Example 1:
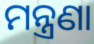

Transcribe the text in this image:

ମନ୍ତ୍ରଣା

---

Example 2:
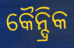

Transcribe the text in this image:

କୈନ୍ଦ୍ରିକ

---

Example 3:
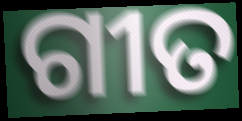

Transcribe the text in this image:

ଗୀତ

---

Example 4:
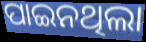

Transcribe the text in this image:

ପାଇନଥିଲା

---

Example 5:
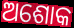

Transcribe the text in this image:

ଅଶୋକ